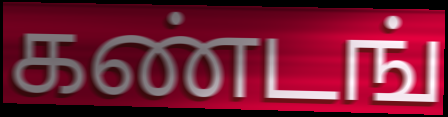
கண்டங்